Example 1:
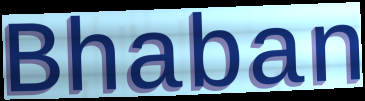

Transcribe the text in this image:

Bhaban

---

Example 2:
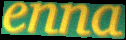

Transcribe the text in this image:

enna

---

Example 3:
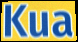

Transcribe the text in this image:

Kua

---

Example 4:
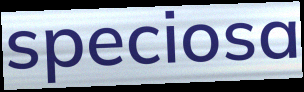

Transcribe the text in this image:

speciosa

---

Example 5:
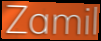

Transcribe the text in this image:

Zamil